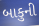
બાકુની